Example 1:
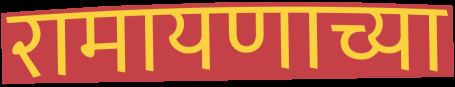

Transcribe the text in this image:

रामायणाच्या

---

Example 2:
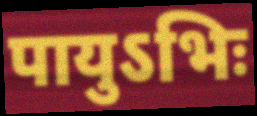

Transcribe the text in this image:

पायुऽभिः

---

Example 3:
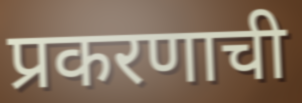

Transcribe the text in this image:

प्रकरणाची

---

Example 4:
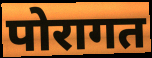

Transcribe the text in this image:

पोरागत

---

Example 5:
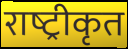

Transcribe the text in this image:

राष्ट्रीकृत